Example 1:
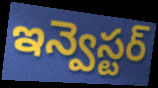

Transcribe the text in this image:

ఇన్వెస్టర్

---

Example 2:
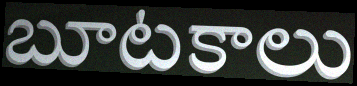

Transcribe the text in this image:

బూటకాలు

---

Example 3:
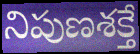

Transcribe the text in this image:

నిపుణశక్తే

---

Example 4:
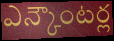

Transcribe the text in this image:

ఎన్కౌంటర్ల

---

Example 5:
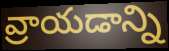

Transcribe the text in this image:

వ్రాయడాన్ని